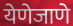
येणेजाणे